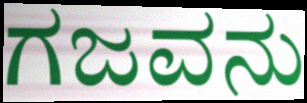
ಗಜವನು